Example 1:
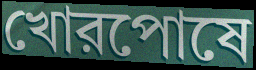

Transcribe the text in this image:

খোরপোষে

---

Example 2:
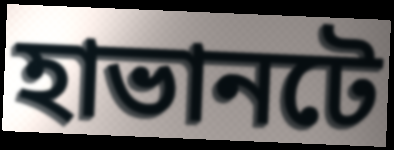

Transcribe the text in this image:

হাভানটে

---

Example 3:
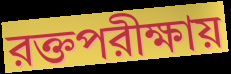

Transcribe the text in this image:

রক্তপরীক্ষায়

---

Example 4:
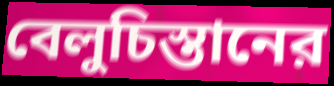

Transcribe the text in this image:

বেলুচিস্তানের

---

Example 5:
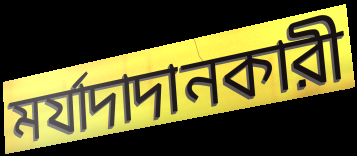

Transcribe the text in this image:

মর্যাদাদানকারী